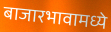
बाजारभावामध्ये